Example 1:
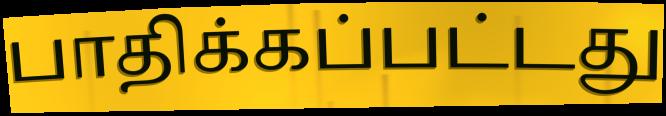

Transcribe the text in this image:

பாதிக்கப்பட்டது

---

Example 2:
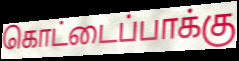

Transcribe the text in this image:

கொட்டைப்பாக்கு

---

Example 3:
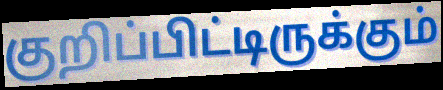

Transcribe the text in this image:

குறிப்பிட்டிருக்கும்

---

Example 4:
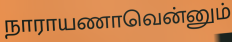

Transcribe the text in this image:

நாராயணாவென்னும்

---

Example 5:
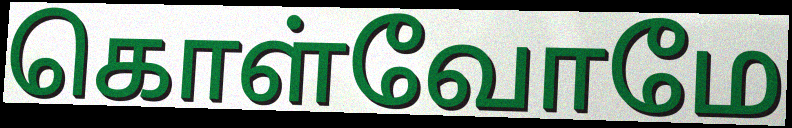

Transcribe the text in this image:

கொள்வோமே